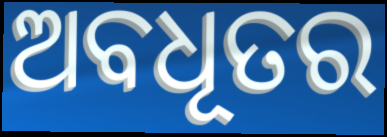
ଅବଧୂତର